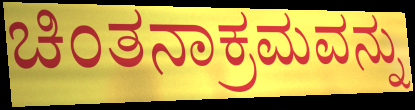
ಚಿಂತನಾಕ್ರಮವನ್ನು